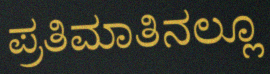
ಪ್ರತಿಮಾತಿನಲ್ಲೂ